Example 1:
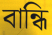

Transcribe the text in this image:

বান্ধি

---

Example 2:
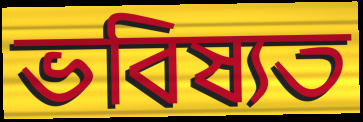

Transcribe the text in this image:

ভবিষ্যত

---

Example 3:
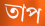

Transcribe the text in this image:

তাপ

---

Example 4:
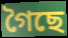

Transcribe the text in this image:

গৈছে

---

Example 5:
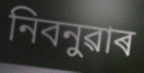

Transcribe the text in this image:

নিবনুৱাৰ